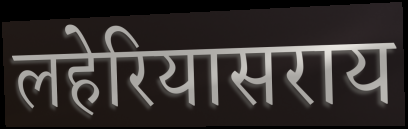
लहेरियासराय